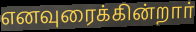
எனவுரைக்கின்றார்